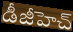
డీజీహెచ్